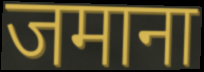
जमाना